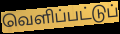
வெளிப்பட்டுப்